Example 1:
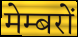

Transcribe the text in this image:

मेम्बरों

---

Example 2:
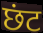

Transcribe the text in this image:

छंट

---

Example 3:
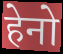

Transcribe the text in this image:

हेनो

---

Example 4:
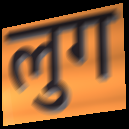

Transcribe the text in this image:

लुग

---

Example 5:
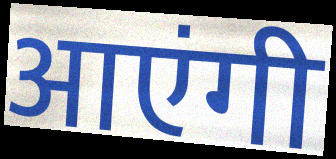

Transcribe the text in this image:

आएंगी